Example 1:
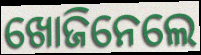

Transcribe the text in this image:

ଖୋଜିନେଲେ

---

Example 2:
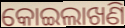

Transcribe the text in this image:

କୋଇଲାଖଣି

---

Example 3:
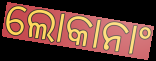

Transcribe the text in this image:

ଲୋକାନାଂ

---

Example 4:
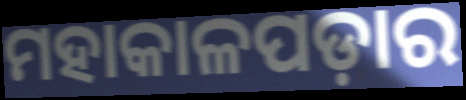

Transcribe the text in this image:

ମହାକାଳପଡ଼ାର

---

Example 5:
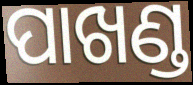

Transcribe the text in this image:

ପାଖଣ୍ଡ